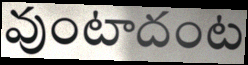
వుంటాదంట